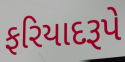
ફરિયાદરૂપે